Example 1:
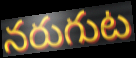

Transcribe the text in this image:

నరుగుట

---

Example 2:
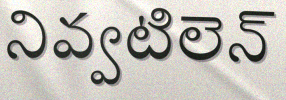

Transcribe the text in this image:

నివ్వటిలెన్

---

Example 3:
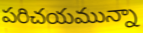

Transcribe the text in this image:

పరిచయమున్నా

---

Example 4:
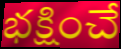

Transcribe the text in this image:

భక్షించే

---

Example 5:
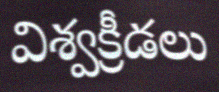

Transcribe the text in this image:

విశ్వక్రీడలు